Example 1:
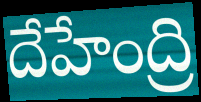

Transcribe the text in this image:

దేహేంద్రి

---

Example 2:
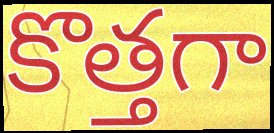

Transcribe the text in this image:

కొత్తగా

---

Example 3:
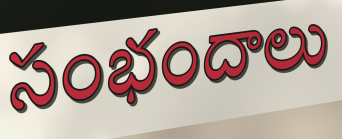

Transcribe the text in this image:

సంభందాలు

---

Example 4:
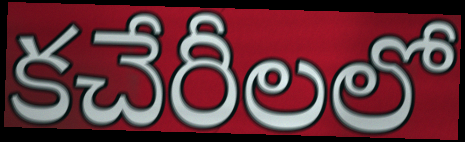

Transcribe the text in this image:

కచేరీలలో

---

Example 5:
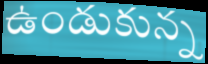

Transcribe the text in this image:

ఉండుకున్న